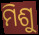
ମିଶୁ